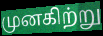
முனகிற்று